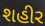
શહીર